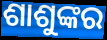
ଶାଶୁଙ୍କର